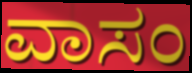
ವಾಸಂ